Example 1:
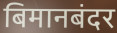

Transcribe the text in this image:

बिमानबंदर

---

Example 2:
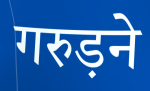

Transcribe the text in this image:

गरुड़ने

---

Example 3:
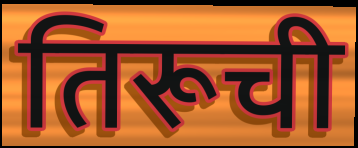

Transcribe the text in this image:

तिरूची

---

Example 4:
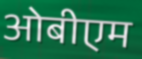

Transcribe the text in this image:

ओबीएम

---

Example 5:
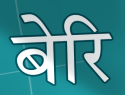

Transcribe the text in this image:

बेरि